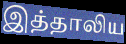
இத்தாலிய